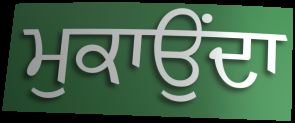
ਮੁਕਾਉਂਦਾ